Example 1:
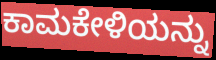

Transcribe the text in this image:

ಕಾಮಕೇಳಿಯನ್ನು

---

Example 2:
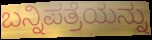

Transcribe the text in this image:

ಬನ್ನಿಪತ್ರೆಯನ್ನು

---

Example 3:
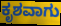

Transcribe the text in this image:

ಕೃಶವಾಗು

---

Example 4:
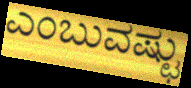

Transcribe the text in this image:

ಎಂಬುವಷ್ಟು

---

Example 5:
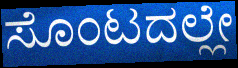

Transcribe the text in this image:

ಸೊಂಟದಲ್ಲೇ